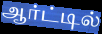
ஆர்ட்டில்